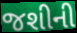
જશીની